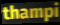
thampi